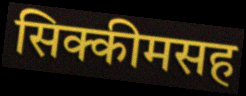
सिक्कीमसह